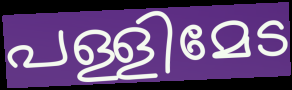
പള്ളിമേട